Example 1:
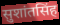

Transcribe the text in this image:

सुशांतसिंह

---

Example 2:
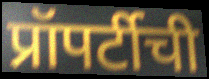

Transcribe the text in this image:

प्रॉपर्टीची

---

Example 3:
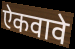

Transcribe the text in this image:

ऐकवावे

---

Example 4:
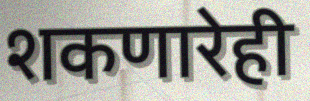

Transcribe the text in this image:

शकणारेही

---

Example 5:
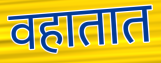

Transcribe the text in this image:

वहातात